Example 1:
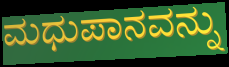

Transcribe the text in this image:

ಮಧುಪಾನವನ್ನು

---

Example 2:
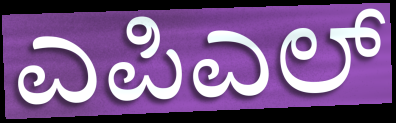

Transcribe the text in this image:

ಎಪಿಎಲ್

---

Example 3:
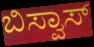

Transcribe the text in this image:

ಬಿಸ್ವಾಸ್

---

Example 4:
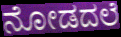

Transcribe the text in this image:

ನೋಡದಲೆ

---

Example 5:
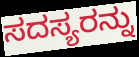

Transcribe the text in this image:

ಸದಸ್ಯರನ್ನು